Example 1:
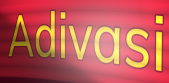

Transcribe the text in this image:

Adivasi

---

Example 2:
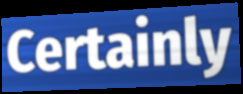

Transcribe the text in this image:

Certainly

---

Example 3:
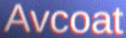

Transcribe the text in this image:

Avcoat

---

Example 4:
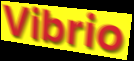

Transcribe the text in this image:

Vibrio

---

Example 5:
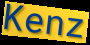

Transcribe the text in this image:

Kenz